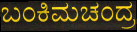
ಬಂಕಿಮಚಂದ್ರ